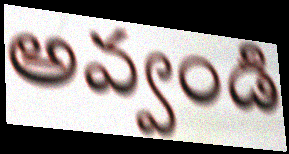
అవ్వండి